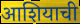
आशियाची